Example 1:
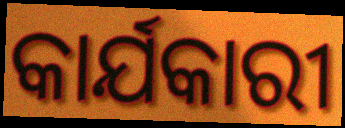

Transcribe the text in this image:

କାର୍ଯକାରୀ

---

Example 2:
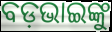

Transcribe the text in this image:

ବଡ଼ଭାଇଙ୍କୁ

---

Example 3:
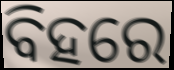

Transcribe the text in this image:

ବିହରେ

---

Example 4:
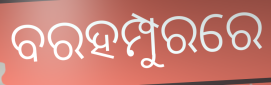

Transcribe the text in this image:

ବରହମ୍ପୁରରେ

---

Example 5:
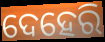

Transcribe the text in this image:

ଦେହେରି